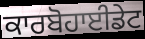
ਕਾਰਬੋਹਾਈਡੇਟ